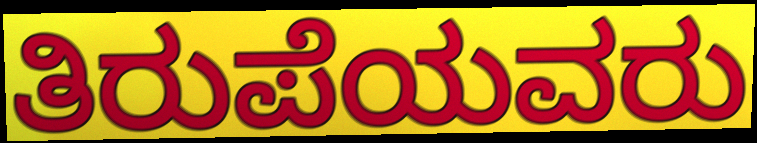
ತಿರುಪೆಯವರು